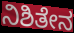
ನಿಶಿತೇನ